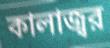
কালাজ্বর